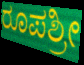
ರೂಪಶ್ರೀ